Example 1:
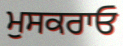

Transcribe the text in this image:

ਮੁਸਕਰਾਓ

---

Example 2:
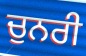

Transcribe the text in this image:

ਚੁਨਰੀ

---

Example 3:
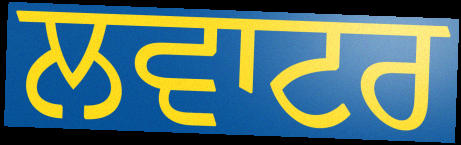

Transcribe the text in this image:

ਲਵਾਟਰ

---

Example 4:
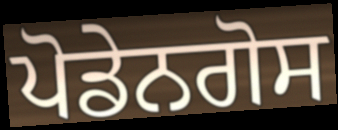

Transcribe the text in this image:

ਪੋਡੇਨਗੋਸ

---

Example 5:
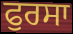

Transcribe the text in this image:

ਫੁਰਸਾ